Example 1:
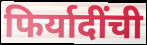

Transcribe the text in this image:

फिर्यादींची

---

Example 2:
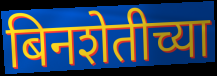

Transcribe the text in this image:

बिनशेतीच्या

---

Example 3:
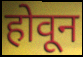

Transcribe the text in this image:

होवून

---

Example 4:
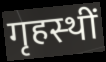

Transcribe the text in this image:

गृहस्थीं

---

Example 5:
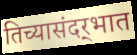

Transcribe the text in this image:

तिच्यासंदर्भात